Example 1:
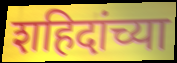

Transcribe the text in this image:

शहिदांच्या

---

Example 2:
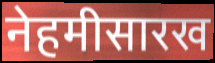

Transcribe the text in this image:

नेहमीसारख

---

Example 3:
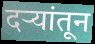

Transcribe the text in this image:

दऱ्यांतून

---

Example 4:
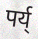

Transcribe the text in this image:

पर्य्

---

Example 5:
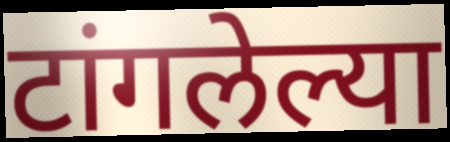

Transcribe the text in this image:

टांगलेल्या